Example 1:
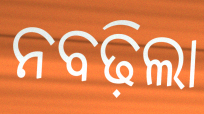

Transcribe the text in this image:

ନବଢ଼ିଲା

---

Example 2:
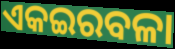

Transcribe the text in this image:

ଏକଇରବଳା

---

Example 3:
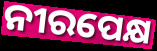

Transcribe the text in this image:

ନୀରପେକ୍ଷ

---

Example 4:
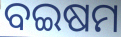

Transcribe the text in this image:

ବଇଷମ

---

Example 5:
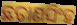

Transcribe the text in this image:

ଛଚାଣସିଂହ